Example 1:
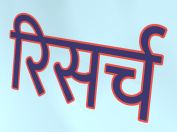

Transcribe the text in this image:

रिसर्च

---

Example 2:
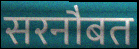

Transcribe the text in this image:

सरनौबत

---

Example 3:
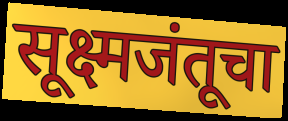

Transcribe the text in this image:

सूक्ष्मजंतूचा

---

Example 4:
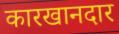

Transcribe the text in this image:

कारखानदार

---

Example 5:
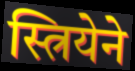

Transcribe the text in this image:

स्त्रियेने